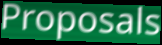
Proposals